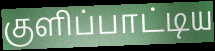
குளிப்பாட்டிய